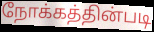
நோக்கத்தின்படி